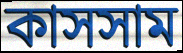
কাসসাম